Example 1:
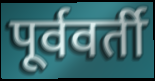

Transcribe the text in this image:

पूर्ववर्ती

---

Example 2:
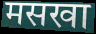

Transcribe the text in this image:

मसखा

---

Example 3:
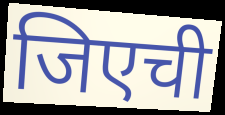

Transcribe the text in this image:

जिएची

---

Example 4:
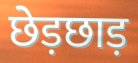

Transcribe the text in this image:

छेड़छाड़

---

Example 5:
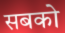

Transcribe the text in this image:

सबको